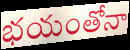
భయంతోనా